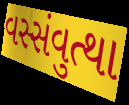
વસ્સંવુત્થા